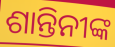
ଶାନ୍ତିନୀଙ୍କ